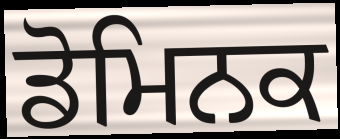
ਡੋਮਿਨਕ